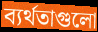
ব্যর্থতাগুলো